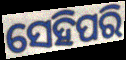
ସେହିପରି